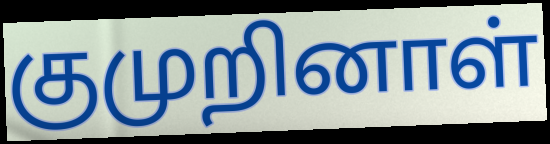
குமுறினாள்